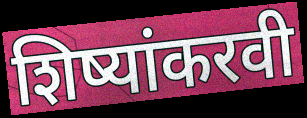
शिष्यांकरवी